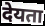
देयता